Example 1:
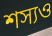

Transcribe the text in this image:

শস্যও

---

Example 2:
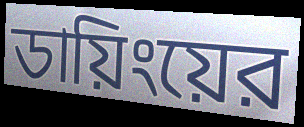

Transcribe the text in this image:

ডায়িংয়ের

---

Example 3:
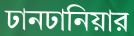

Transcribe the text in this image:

ঢানঢানিয়ার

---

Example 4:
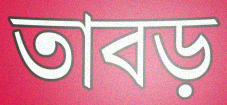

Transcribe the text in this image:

তাবড়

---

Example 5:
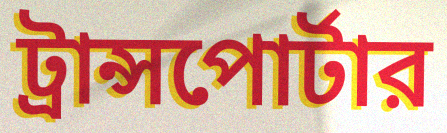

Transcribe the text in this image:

ট্রান্সপোর্টার